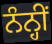
ਨੰਨ੍ਹੀਂ